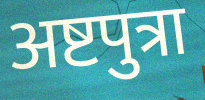
अष्टपुत्रा